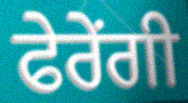
ਫੇਰੇਂਗੀ